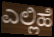
ಎಲ್ಲಿಹೆ